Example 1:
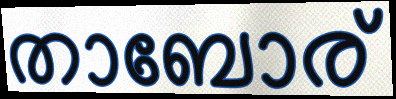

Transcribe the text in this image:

താബോര്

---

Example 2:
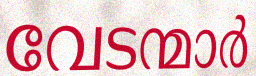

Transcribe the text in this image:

വേടന്മാർ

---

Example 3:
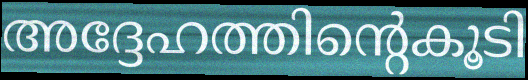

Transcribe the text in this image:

അദ്ദേഹത്തിന്റെകൂടി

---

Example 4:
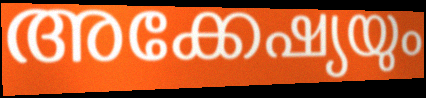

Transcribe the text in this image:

അക്കേഷ്യയും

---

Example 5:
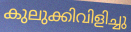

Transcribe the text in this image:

കുലുക്കിവിളിച്ചു